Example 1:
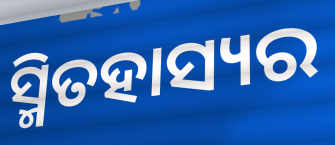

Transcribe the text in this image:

ସ୍ମିତହାସ୍ୟର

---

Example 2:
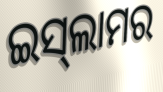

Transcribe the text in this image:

ଇସ୍‍ଲାମର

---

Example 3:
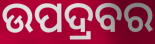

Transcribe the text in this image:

ଉପଦ୍ରବର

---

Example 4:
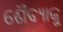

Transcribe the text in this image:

ଶୈବ୍ୟାକୁ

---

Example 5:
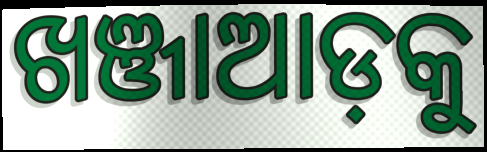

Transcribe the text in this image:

ଖଞ୍ଜାଆଡ଼କୁ